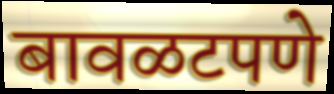
बावळटपणे